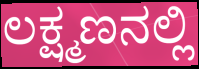
ಲಕ್ಷ್ಮಣನಲ್ಲಿ